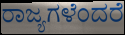
ರಾಜ್ಯಗಳೆಂದರೆ